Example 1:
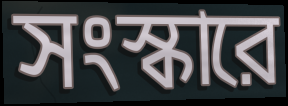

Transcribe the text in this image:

সংস্কারে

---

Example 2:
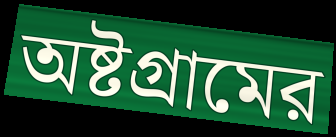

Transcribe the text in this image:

অষ্টগ্রামের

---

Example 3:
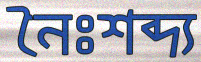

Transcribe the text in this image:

নৈঃশব্দ্য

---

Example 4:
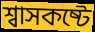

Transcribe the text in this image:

শ্বাসকষ্টে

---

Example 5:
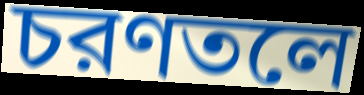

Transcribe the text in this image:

চরণতলে